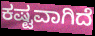
ಕಷ್ಟವಾಗಿದೆ